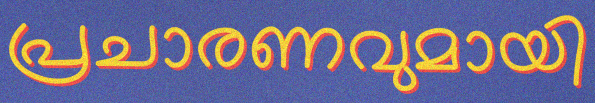
പ്രചാരണവുമായി